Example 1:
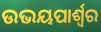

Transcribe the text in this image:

ଉଭୟପାର୍ଶ୍ୱର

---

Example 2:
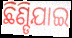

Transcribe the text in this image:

ଛିଣ୍ଡିଯାଇ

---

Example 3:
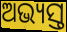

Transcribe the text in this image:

ଅଭ୍ୟସ୍ତ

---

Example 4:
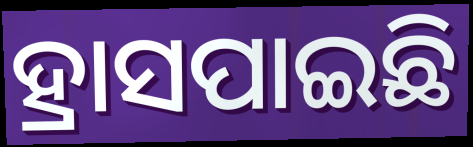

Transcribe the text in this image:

ହ୍ରାସପାଇଛି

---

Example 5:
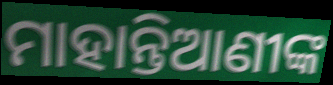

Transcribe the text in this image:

ମାହାନ୍ତିଆଣୀଙ୍କ